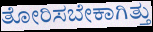
ತೋರಿಸಬೇಕಾಗಿತ್ತು